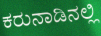
ಕರುನಾಡಿನಲ್ಲಿ